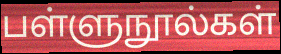
பள்ளுநூல்கள்